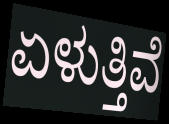
ಏಳುತ್ತಿವೆ